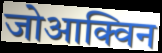
जोआक्विन